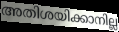
അതിശയിക്കാനില്ല